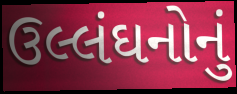
ઉલ્લંઘનોનું